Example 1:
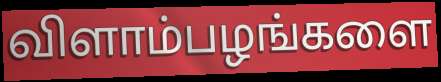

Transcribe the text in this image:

விளாம்பழங்களை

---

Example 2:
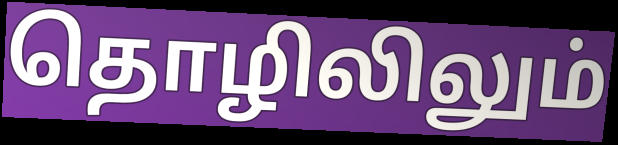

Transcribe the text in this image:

தொழிலிலும்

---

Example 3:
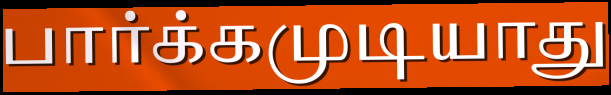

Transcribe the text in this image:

பார்க்கமுடியாது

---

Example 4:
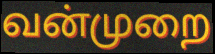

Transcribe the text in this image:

வன்முறை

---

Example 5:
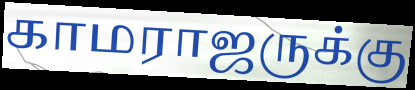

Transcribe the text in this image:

காமராஜருக்கு